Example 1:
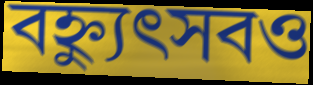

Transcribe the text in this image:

বহ্ন্যুৎসবও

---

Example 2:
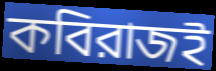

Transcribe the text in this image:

কবিরাজই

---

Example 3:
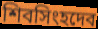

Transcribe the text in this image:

শিবসিংহদেব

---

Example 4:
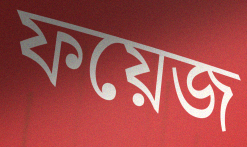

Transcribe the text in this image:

ফয়েজ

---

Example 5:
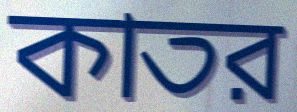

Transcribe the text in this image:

কাতর